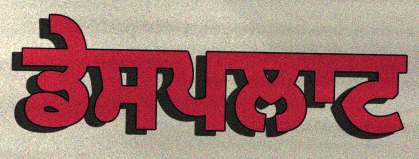
ਡੇਸਪਲਾਟ